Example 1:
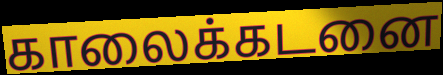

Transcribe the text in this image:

காலைக்கடனை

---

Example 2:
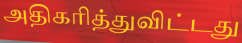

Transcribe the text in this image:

அதிகரித்துவிட்டது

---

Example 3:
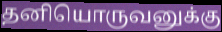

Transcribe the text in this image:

தனியொருவனுக்கு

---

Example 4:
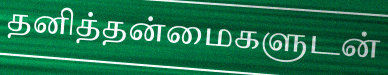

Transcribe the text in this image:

தனித்தன்மைகளுடன்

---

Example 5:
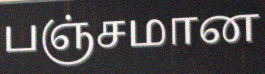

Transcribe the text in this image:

பஞ்சமான